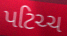
પટિચ્ચ